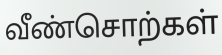
வீண்சொற்கள்